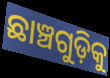
ଛାଞ୍ଚଗୁଡ଼ିକୁ